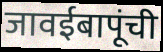
जावईबापूंची